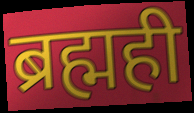
ब्रह्मही